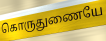
கொருதுணையே